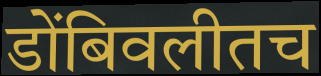
डोंबिवलीतच